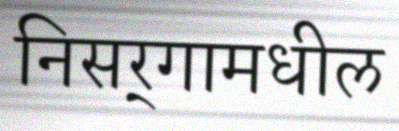
निसर्गामधील